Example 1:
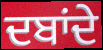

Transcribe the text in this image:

ਦਬਾਂਦੇ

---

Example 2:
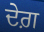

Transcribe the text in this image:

ਦੇਗ਼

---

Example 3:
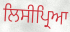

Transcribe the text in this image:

ਲਿਸੀਪ੍ਰਿਆ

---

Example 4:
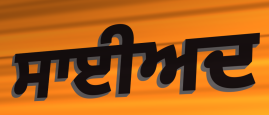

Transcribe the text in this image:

ਸਾਈਅਦ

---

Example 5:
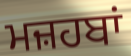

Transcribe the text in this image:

ਮਜ਼ਹਬਾਂ